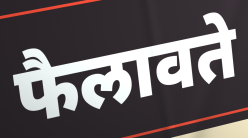
फैलावते